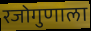
रजोगुणाला